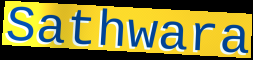
Sathwara